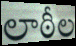
లాఠీల